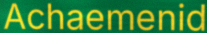
Achaemenid